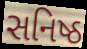
સનિષ્ઠ